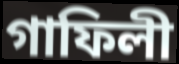
গাফিলী